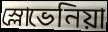
স্লোভেনিয়া